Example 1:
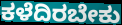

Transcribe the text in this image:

ಕಳೆದಿರಬೇಕು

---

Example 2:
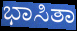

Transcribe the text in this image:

ಭಾಸಿತಾ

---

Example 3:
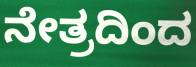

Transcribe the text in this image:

ನೇತ್ರದಿಂದ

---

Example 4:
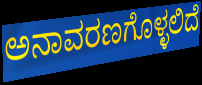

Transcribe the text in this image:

ಅನಾವರಣಗೊಳ್ಳಲಿದೆ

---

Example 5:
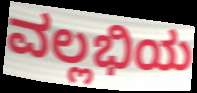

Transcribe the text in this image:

ವಲ್ಲಭಿಯ